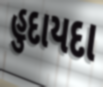
હુદાયદા